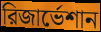
রিজার্ভেশান